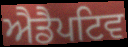
ਐਡੈਪਟਿਵ